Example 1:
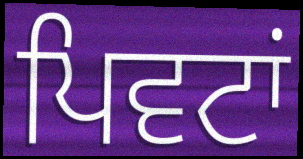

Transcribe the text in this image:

ਪਿਵਟਾਂ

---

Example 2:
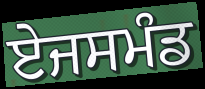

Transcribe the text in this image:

ਏਜਸਮੰਡ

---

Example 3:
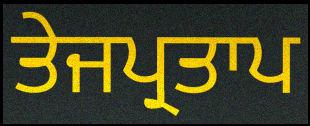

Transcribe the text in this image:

ਤੇਜਪ੍ਰਤਾਪ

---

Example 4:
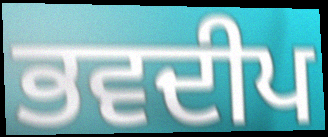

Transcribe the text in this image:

ਭਵਦੀਪ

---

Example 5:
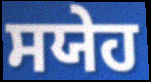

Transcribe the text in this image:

ਸਯੇਹ